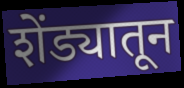
शेंड्यातून